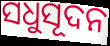
ସଧୁସୂଦନ